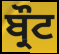
ਬ੍ਰੌਟ